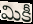
మికీ